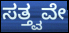
ಸತ್ತ್ವವೇ